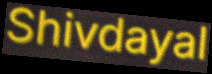
Shivdayal